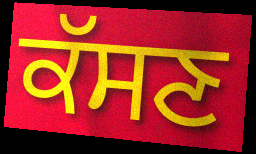
ਕੱਸਣ